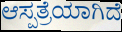
ಆಸ್ಪತ್ರೆಯಾಗಿದೆ